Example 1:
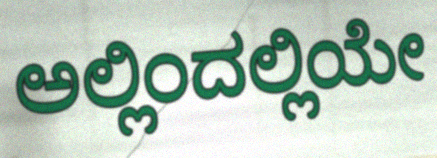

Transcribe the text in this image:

ಅಲ್ಲಿಂದಲ್ಲಿಯೇ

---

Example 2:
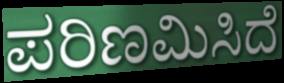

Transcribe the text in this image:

ಪರಿಣಮಿಸಿದೆ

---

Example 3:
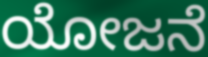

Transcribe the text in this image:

ಯೋಜನೆ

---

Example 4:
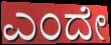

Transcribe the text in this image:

ಎಂದೇ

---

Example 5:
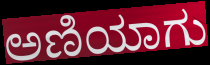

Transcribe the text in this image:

ಅಣಿಯಾಗು